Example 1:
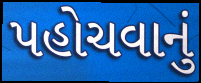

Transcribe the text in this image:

પહોચવાનું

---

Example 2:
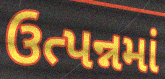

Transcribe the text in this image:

ઉત્પન્નમાં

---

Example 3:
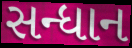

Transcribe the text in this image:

સન્ધાન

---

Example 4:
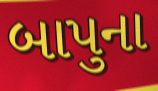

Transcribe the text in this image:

બાપુના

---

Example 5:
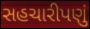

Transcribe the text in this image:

સહચારીપણું